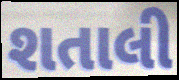
શતાલી